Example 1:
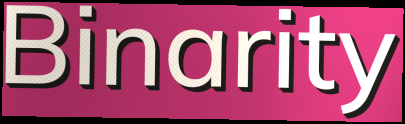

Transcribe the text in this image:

Binarity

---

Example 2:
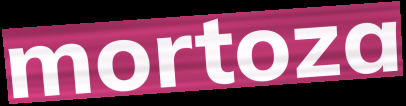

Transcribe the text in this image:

mortoza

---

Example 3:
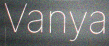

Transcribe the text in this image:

Vanya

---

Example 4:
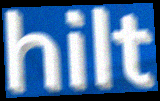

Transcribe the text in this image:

hilt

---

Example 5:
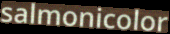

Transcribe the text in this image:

salmonicolor